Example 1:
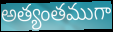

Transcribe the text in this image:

అత్యంతముగా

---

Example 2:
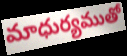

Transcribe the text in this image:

మాధుర్యముతో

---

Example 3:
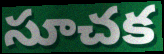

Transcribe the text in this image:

సూచక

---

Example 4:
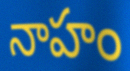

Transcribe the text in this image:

నాహం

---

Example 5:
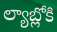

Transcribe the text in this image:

ల్యాబ్లోకి